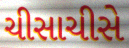
ચીસાચીસે